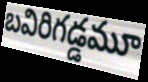
బవిరిగడ్డమూ